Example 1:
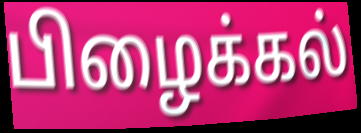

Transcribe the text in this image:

பிழைக்கல்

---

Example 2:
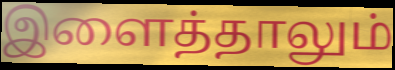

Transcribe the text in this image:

இளைத்தாலும்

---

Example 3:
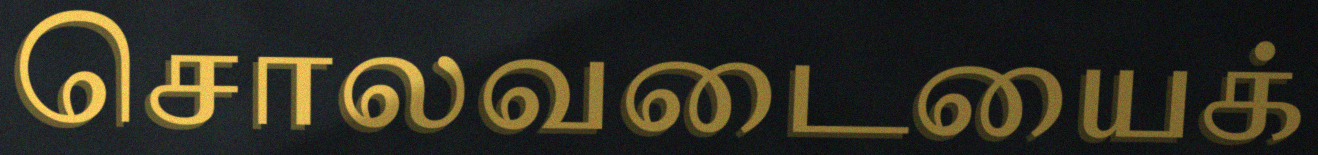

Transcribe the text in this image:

சொலவடையைக்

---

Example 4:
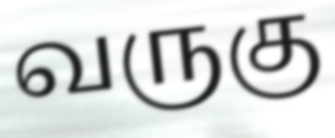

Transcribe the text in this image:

வருகு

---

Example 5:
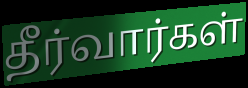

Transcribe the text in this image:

தீர்வார்கள்